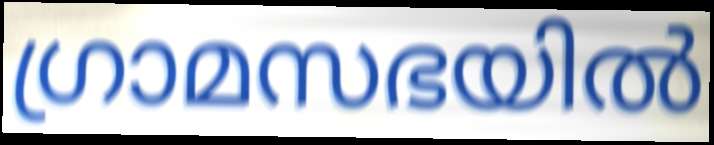
ഗ്രാമസഭയിൽ